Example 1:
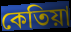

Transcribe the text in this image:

কেতিয়া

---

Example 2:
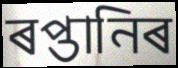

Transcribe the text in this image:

ৰপ্তানিৰ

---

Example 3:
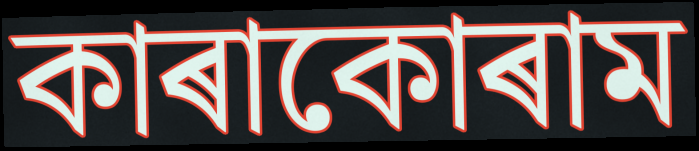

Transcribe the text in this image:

কাৰাকোৰাম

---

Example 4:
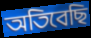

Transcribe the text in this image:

অতিবেছি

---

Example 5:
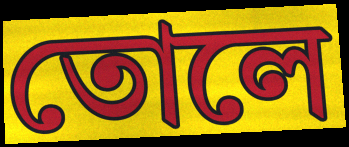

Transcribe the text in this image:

তোলে